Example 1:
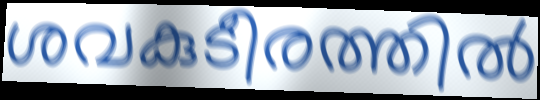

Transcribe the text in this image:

ശവകുടീരത്തിൽ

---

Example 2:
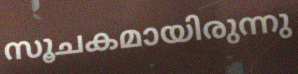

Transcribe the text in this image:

സൂചകമായിരുന്നു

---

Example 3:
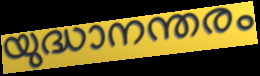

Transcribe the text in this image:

യുദ്ധാനന്തരം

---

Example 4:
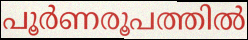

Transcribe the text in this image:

പൂർണരൂപത്തിൽ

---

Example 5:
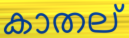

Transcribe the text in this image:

കാതല്